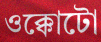
ওক্কোটো